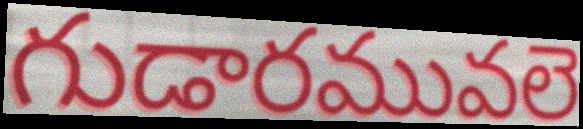
గుడారమువలె